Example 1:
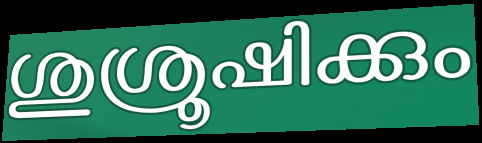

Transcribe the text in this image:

ശുശ്രൂഷിക്കും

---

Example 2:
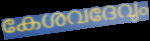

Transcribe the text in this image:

കേശവദേവും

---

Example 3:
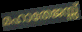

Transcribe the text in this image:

മഹാതേജസ്സ്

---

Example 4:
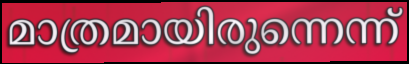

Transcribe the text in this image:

മാത്രമായിരുന്നെന്ന്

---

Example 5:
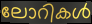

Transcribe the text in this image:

ലോറികൾ